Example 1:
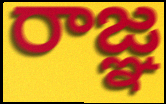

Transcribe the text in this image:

రాజ్ఞ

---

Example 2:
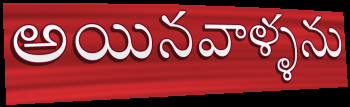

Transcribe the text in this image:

అయినవాళ్ళను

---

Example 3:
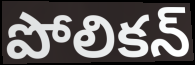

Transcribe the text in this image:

పోలికన్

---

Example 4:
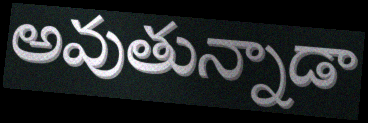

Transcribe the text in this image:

అవుతున్నాడా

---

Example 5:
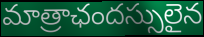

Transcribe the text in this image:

మాత్రాఛందస్సులైన